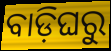
ବାଡ଼ିଘରୁ